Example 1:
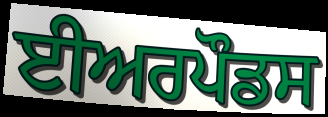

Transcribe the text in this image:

ਈਅਰਪੌਡਸ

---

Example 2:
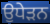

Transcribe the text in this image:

ਉਧੇੜਨ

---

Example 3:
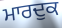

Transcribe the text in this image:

ਮਾਰਦੁਕ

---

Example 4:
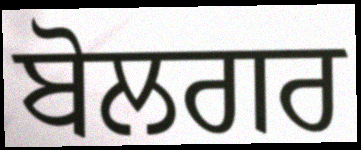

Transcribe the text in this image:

ਬੋਲਗਰ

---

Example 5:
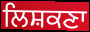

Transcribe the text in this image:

ਲਿਸ਼ਕਣਾ